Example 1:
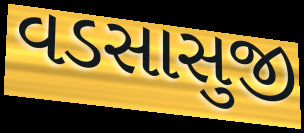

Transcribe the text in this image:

વડસાસુજી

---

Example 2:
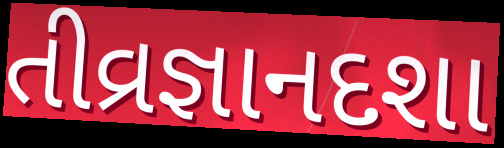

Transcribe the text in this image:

તીવ્રજ્ઞાનદશા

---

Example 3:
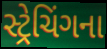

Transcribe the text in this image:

સ્ટ્રેચિંગના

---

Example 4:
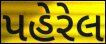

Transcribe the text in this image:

પહેરેલ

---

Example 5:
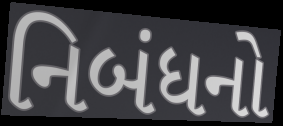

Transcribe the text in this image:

નિબંધનો